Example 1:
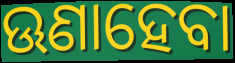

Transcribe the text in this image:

ଊଣାହେବା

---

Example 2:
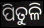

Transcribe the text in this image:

ପିତୁଳି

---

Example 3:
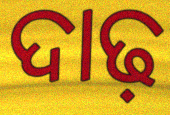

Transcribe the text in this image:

ଦାଢ଼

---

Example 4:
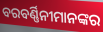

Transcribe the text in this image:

ବରବର୍ଣ୍ଣିନୀମାନଙ୍କର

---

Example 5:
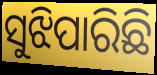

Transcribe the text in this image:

ସୁଝିପାରିଛି